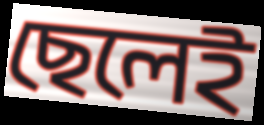
ছেলেই